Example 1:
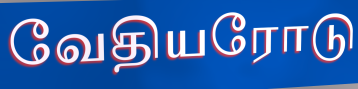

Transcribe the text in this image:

வேதியரோடு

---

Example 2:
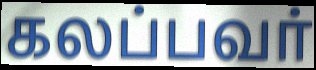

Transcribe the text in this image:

கலப்பவர்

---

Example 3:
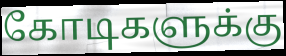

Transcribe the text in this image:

கோடிகளுக்கு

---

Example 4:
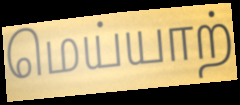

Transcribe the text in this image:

மெய்யாற்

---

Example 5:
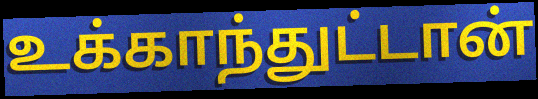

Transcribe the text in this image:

உக்காந்துட்டான்